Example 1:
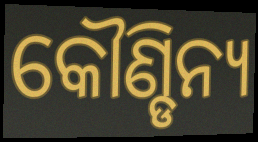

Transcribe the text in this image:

କୌଣ୍ଡିନ୍ୟ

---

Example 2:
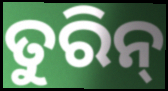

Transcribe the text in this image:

ତୁରିନ୍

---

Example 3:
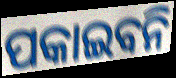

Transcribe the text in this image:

ପକାଇବନି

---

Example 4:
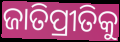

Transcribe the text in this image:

ଜାତିପ୍ରୀତିକୁ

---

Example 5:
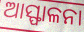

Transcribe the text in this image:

ଆସ୍ଫାଳନା